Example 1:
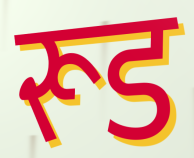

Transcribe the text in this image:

रूड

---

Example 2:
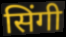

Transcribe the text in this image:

सिंगी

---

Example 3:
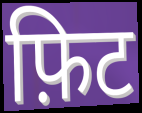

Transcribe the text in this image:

फ़िट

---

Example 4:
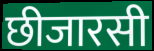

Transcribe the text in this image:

छीजारसी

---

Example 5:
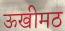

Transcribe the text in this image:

ऊखीमठ